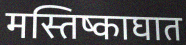
मस्तिष्काघात